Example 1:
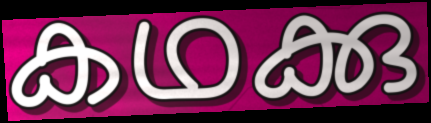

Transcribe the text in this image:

കഥക്കു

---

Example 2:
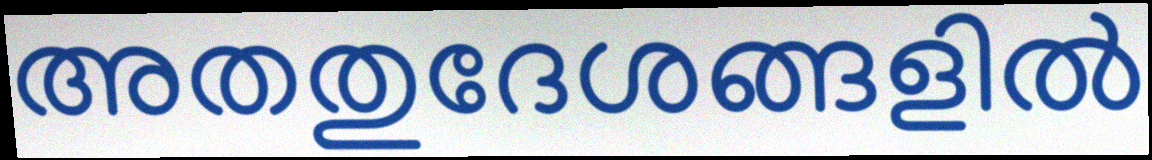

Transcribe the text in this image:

അതതുദേശങ്ങളിൽ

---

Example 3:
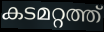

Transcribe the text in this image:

കടമറ്റത്ത്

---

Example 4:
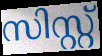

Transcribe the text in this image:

സിസ്റ്റ്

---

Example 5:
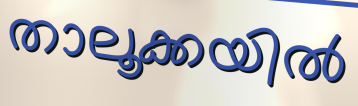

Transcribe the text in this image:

താലൂക്കയിൽ